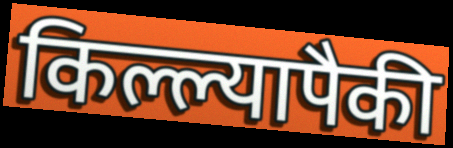
किल्ल्यापैकी